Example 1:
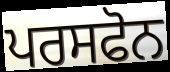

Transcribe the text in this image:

ਪਰਸਫੋਨ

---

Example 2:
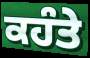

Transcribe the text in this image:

ਕਹੰਤੇ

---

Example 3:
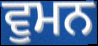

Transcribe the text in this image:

ਵੁਮਨ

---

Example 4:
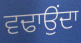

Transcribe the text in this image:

ਵਢਾਉਂਦਾ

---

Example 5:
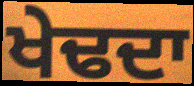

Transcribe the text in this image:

ਖੇਢਦਾ